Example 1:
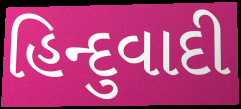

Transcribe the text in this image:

હિન્દુવાદી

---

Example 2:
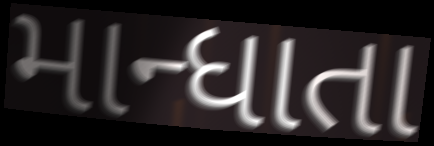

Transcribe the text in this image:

માન્ધાતા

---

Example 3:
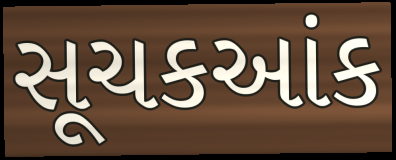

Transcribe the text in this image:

સૂચકઆંક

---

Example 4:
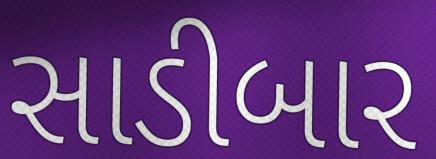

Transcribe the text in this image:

સાડીબાર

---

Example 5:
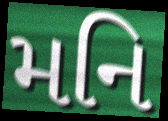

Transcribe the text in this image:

મનિ